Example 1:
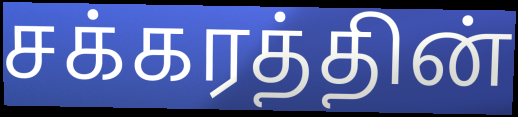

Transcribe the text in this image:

சக்கரத்தின்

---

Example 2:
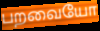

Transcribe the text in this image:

பறவையோ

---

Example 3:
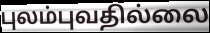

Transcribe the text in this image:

புலம்புவதில்லை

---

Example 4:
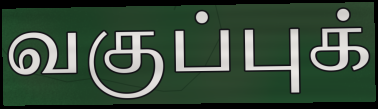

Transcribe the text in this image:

வகுப்புக்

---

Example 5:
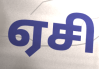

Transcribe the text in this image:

ஏசி